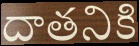
దాతనికి